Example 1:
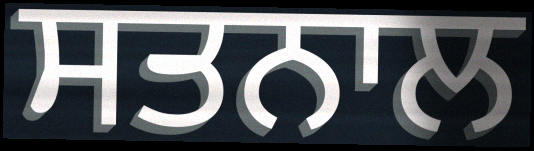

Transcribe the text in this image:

ਸਤਨਾਲ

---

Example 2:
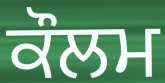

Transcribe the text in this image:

ਕੌਲਮ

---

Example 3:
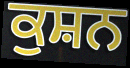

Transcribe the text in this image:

ਕੁਸ਼ਨ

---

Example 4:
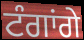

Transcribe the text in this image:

ਟੰਗਾਂਗੇ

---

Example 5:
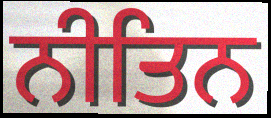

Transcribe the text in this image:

ਨੀਤਿਨ